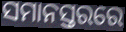
ସମାନସ୍ତରରେ